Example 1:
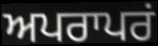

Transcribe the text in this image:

ਅਪਰਾਪਰਂ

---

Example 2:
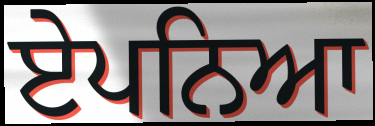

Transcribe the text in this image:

ਏਪਨਿਆ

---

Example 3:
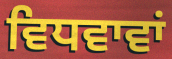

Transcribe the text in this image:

ਵਿਧਵਾਵਾਂ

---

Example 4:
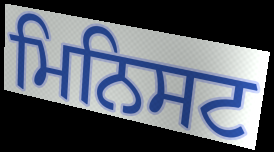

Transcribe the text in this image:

ਮਿਨਿਸਟ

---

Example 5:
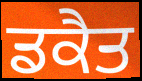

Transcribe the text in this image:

ਡਕੈਤ